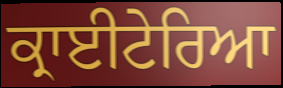
ਕ੍ਰਾਈਟੇਰਿਆ